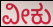
ವೀಕು